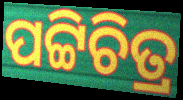
ପଟ୍ଟିଚିତ୍ର